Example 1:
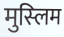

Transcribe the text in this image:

मुस्‍लिम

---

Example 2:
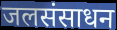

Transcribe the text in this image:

जलसंसाधन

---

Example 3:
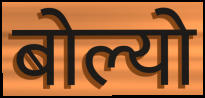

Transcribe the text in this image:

बोल्यो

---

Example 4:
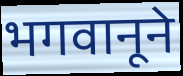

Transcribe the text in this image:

भगवानूने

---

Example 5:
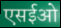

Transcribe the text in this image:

एसईओ